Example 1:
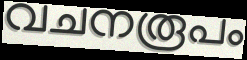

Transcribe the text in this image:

വചനരൂപം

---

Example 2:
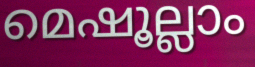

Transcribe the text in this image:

മെഷൂല്ലാം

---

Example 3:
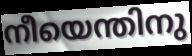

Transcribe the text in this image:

നീയെന്തിനു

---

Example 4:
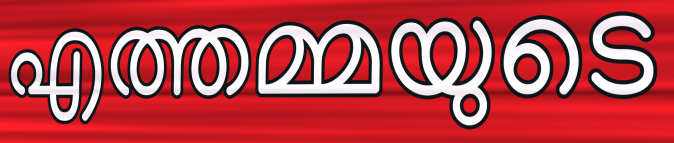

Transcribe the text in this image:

എത്തമ്മയുടെ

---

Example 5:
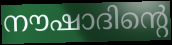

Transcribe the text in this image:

നൗഷാദിന്റെ